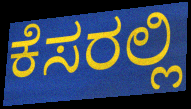
ಕೆಸರಲ್ಲಿ